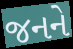
જનને